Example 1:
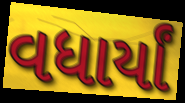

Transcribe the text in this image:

વધાર્યાં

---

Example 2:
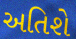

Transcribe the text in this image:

અતિશે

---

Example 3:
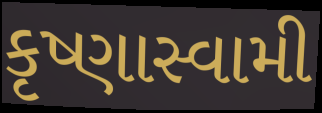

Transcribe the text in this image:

કૃષ્ણાસ્વામી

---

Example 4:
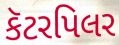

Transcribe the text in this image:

કૅટરપિલર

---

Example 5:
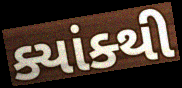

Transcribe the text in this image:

ક્યાંક્થી